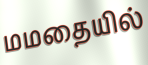
மமதையில்